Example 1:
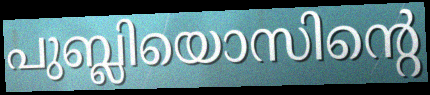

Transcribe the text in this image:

പുബ്ലിയൊസിന്റെ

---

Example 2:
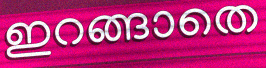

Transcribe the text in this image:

ഇറങ്ങാതെ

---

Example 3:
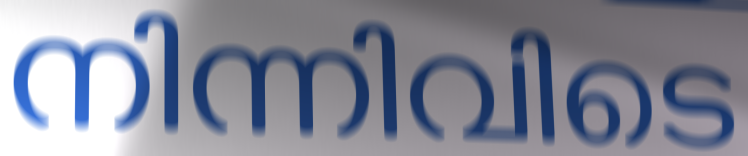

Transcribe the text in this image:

നിന്നിവിടെ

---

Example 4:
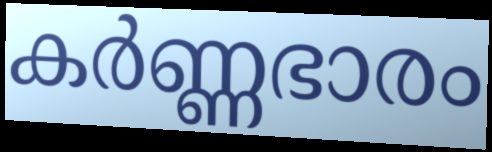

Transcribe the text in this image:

കർണ്ണഭാരം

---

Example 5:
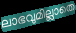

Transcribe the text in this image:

ലാഭവുമില്ലാതെ